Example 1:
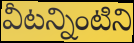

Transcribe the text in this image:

వీటన్నింటిని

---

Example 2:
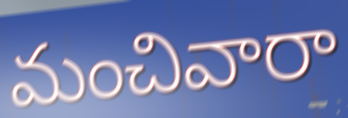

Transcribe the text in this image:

మంచివారా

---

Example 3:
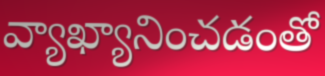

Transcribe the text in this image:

వ్యాఖ్యానించడంతో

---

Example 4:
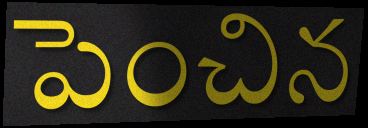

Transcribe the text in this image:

పెంచిన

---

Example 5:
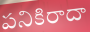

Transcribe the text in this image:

పనికిరాదా